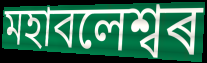
মহাবলেশ্বৰ